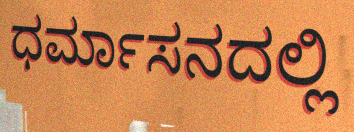
ಧರ್ಮಾಸನದಲ್ಲಿ